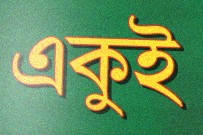
একুই